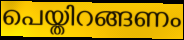
പെയ്തിറങ്ങണം